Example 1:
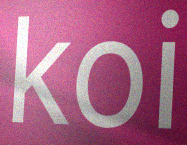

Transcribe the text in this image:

koi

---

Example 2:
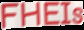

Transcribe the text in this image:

FHEIs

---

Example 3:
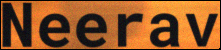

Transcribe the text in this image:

Neerav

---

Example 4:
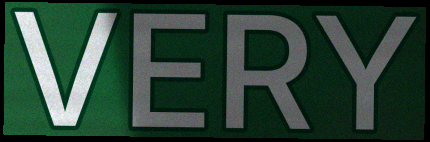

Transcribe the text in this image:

VERY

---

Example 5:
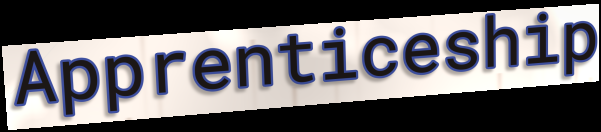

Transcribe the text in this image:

Apprenticeship